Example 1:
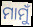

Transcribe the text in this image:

ମାମୁଁ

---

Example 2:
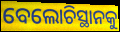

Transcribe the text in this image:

ବେଲୋଚିସ୍ଥାନକୁ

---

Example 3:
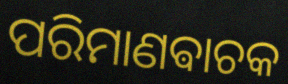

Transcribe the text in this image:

ପରିମାଣଵାଚକ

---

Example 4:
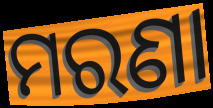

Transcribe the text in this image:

ମରଣା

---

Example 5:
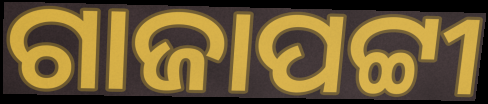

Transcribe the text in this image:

ଗାଜାପଟ୍ଟୀ